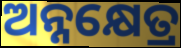
ଅନ୍ନକ୍ଷେତ୍ର